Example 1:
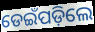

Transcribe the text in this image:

ଡେଇଁପଡ଼ିଲେ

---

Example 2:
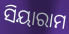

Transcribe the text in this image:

ସିୟାରାମ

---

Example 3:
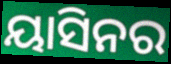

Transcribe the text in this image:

ୟାସିନର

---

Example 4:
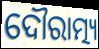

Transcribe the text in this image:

ଦୌରାତ୍ମ୍ୟ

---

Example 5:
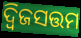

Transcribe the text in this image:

ଦ୍ୱିଜସତ୍ତମ